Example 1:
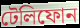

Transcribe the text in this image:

টেলিফোন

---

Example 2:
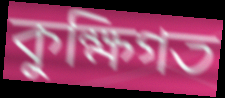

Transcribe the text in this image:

কুক্ষিগত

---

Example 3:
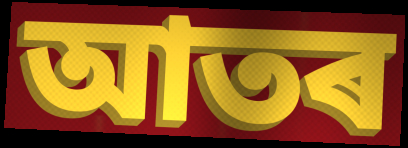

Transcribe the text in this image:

আতৰ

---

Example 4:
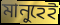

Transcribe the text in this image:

মানুহেই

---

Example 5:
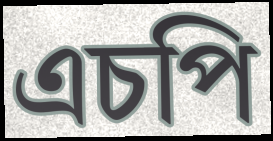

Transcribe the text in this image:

এচপি